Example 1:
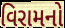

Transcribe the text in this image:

વિરામનો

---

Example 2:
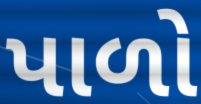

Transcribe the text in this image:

પાળો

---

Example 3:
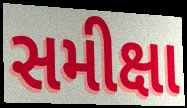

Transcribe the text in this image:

સમીક્ષા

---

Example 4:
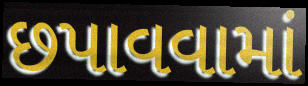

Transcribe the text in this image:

છપાવવામાં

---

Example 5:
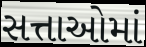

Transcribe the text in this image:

સત્તાઓમાં